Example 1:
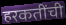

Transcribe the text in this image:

हरकतींची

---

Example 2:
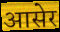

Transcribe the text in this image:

आसेर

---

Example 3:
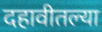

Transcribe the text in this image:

दहावीतल्या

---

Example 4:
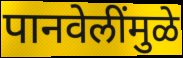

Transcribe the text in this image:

पानवेलींमुळे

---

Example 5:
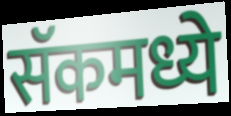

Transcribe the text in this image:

सॅकमध्ये